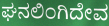
ಘನಲಿಂಗಿದೇವ